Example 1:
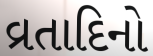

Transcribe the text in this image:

વ્રતાદિનો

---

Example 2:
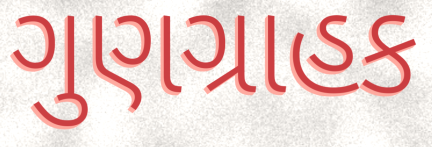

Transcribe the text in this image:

ગુણગ્રાહક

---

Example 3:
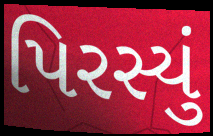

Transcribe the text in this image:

પિરસ્યું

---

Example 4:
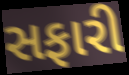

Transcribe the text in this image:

સફારી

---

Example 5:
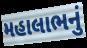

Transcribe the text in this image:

મહાલાભનું